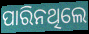
ପାରିନଥିଲେ